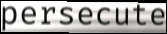
persecute